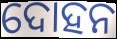
ଦୋହନ